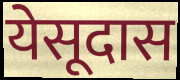
येसूदास